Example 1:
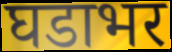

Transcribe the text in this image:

घडाभर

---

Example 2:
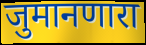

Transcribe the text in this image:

जुमानणारा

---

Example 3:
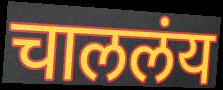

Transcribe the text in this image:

चाललंय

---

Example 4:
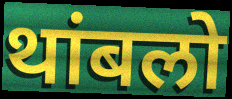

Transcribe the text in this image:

थांबलो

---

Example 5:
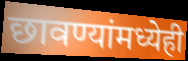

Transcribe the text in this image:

छावण्यांमध्येही